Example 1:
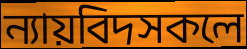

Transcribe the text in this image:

ন্যায়বিদসকলে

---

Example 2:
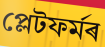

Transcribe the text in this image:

প্লেটফৰ্মৰ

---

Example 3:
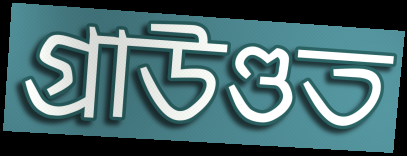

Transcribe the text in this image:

গ্ৰাউণ্ডত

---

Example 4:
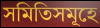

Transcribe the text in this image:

সমিতিসমূহে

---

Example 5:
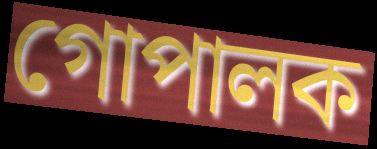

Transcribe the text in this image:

গোপালক